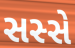
સસ્સે